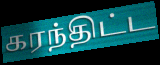
கரந்திட்ட